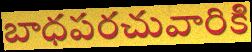
బాధపరచువారికి